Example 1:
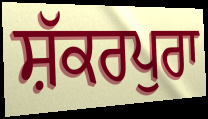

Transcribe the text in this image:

ਸ਼ੱਕਰਪੁਰਾ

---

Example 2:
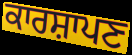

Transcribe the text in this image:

ਕਾਰਸ਼ਾਪਣ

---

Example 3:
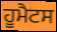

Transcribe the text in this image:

ਹੂਮੈਟਸ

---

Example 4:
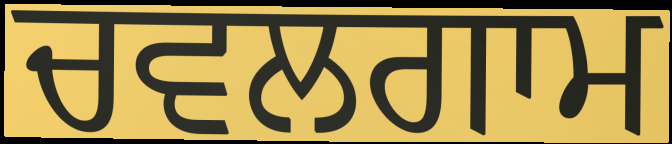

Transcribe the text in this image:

ਚਵਲਗਾਮ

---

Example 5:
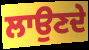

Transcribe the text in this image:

ਲਾਉਣਦੇ